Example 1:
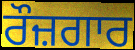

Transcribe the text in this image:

ਰੌਜ਼ਗਾਰ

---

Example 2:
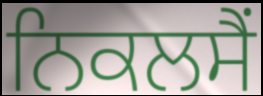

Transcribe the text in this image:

ਨਿਕਲਸੈਂ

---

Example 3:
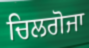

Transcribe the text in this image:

ਚਿਲਗੋਜਾ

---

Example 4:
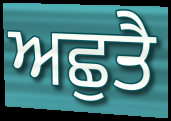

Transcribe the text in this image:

ਅਛੁਤੈ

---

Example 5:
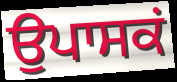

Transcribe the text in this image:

ਉਪਾਸਕਂ